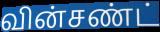
வின்சண்ட்